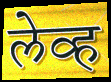
लेव्ह